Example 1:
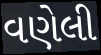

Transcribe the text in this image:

વણેલી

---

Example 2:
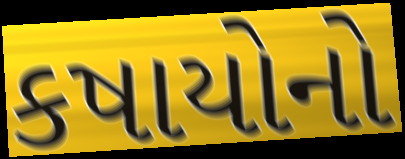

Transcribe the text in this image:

કષાયોનો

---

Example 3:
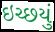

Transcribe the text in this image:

ઇચ્છયું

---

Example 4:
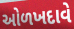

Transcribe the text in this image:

ઓળખદાવે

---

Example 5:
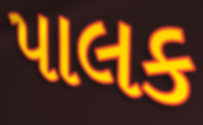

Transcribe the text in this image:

પાલક